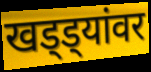
खड्ड्यांवर